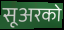
सूअरको